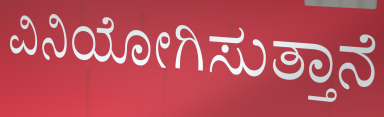
ವಿನಿಯೋಗಿಸುತ್ತಾನೆ